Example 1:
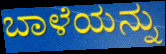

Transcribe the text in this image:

ಬಾಳೆಯನ್ನು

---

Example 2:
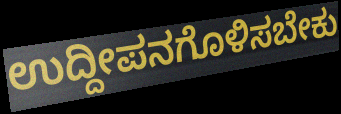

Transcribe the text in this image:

ಉದ್ದೀಪನಗೊಳಿಸಬೇಕು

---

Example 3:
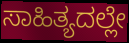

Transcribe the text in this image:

ಸಾಹಿತ್ಯದಲ್ಲೇ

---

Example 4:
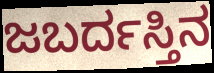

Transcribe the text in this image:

ಜಬರ್ದಸ್ತಿನ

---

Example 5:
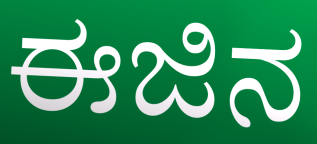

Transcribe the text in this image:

ಈಜಿನ